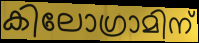
കിലോഗ്രാമിന്